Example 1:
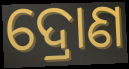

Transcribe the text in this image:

ଦ୍ରୋଣ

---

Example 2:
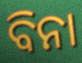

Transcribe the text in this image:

ବିନା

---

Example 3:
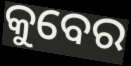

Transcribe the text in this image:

କୁବେର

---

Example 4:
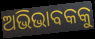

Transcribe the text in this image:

ଅଭିଭାବକକୁ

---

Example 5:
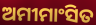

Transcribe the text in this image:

ଅମୀମାଂସିତ